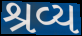
શ્રવ્ય